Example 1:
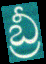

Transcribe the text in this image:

బ్రీ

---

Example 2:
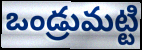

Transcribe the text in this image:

ఒండ్రుమట్టి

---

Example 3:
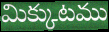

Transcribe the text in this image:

మిక్కుటము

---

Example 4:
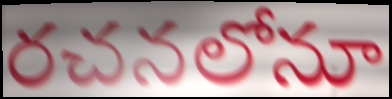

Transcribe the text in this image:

రచనలోనూ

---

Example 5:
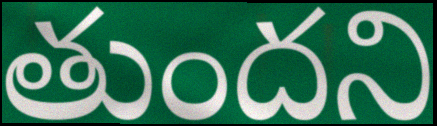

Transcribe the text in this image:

తుందని